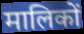
मालिकों